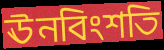
ঊনবিংশতি